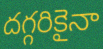
దగ్గరికైనా